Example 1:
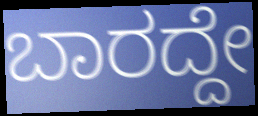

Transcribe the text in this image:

ಬಾರದ್ದೇ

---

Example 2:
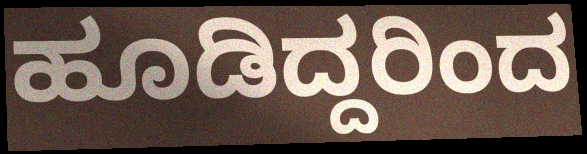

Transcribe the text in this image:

ಹೂಡಿದ್ದರಿಂದ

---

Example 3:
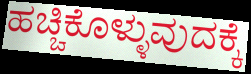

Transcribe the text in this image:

ಹಚ್ಚಿಕೊಳ್ಳುವುದಕ್ಕೆ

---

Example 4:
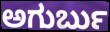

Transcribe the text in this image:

ಅಗುರ್ಬು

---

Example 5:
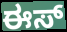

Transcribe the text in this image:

ಈಸ್